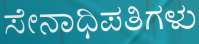
ಸೇನಾಧಿಪತಿಗಳು